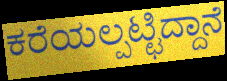
ಕರೆಯಲ್ಪಟ್ಟಿದ್ದಾನೆ